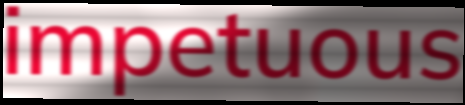
impetuous